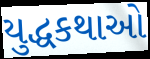
યુદ્ધકથાઓ